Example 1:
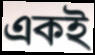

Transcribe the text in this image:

একই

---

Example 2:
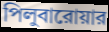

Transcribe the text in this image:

পিলুবারোয়ার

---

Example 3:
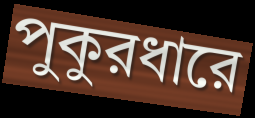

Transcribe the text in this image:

পুকুরধারে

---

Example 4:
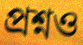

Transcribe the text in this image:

প্রশ্নও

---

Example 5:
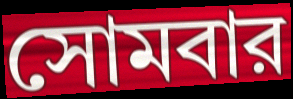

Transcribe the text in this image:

সোমবার